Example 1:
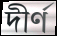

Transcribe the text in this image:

দীর্ণ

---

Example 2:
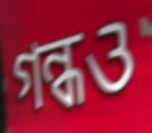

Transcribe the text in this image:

গন্ধও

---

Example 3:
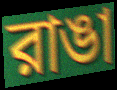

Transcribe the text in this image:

রাঙা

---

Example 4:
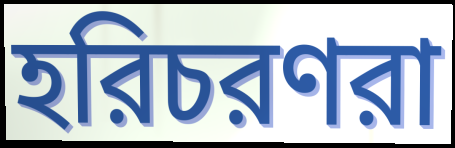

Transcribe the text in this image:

হরিচরণরা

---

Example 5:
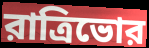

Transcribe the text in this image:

রাত্রিভোর